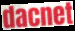
dacnet